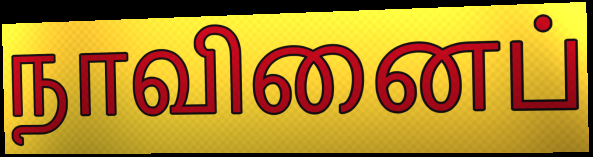
நாவினைப்